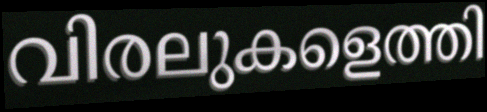
വിരലുകളെത്തി